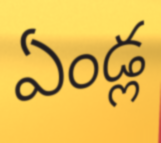
ఏండ్ల